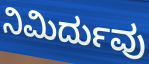
ನಿಮಿರ್ದುವು